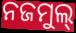
ନଜମୁଲ୍